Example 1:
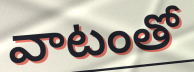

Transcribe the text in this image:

వాటంతో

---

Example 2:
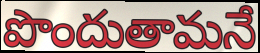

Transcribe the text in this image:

పొందుతామనే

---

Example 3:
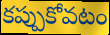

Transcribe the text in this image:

కప్పుకోవటం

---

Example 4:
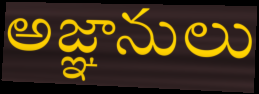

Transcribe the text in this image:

అజ్ఞానులు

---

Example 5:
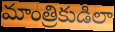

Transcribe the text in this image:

మాంత్రికుడిలా